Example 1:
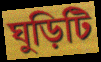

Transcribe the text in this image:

ঘুড়িটি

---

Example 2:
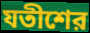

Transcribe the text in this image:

যতীশের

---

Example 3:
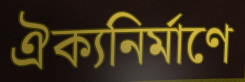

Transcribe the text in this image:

ঐক্যনির্মাণে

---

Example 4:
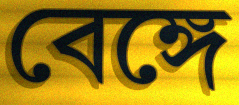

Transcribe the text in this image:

বেঙ্গে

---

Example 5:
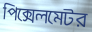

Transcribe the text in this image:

পিক্সেলমেটর